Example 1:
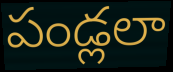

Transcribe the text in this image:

పండ్లలా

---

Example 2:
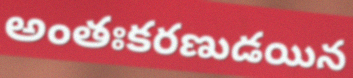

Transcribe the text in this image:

అంతఃకరణుడయిన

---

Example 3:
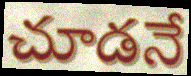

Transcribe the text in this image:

చూడనే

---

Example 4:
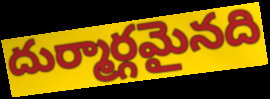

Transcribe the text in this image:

దుర్మార్గమైనది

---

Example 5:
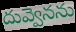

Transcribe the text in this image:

దువ్వెనను